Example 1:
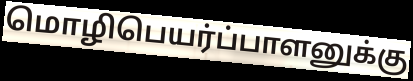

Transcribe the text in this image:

மொழிபெயர்ப்பாளனுக்கு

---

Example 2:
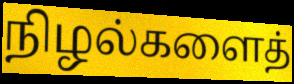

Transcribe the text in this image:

நிழல்களைத்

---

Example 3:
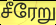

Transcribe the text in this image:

சீரேறு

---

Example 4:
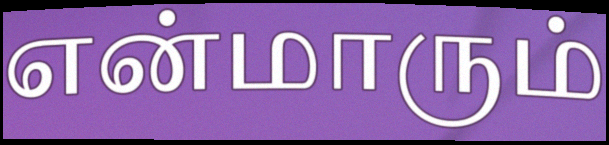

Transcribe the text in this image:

என்மாரும்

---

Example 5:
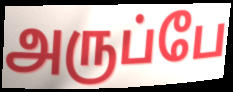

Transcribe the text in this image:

அருப்பே